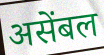
असेंबल